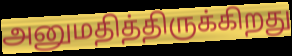
அனுமதித்திருக்கிறது